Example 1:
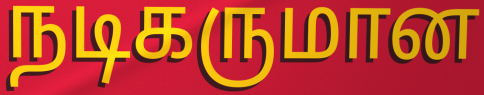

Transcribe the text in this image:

நடிகருமான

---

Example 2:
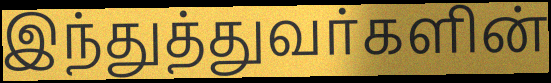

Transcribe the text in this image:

இந்துத்துவர்களின்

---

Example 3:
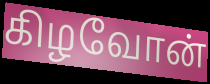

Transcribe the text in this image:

கிழவோன்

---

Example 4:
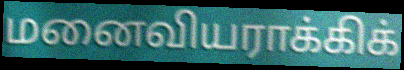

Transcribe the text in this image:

மனைவியராக்கிக்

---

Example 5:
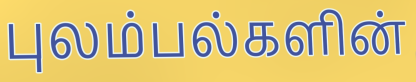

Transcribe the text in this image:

புலம்பல்களின்